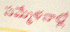
సమ్మేళనాల్లో